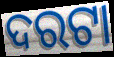
ଦରଟା